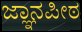
ಜ್ಞಾನಪೀಠ